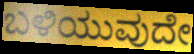
ಬಳಿಯುವುದೇ